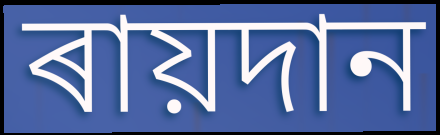
ৰায়দান